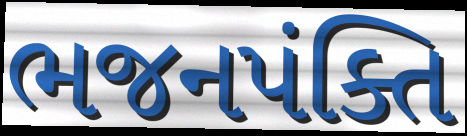
ભજનપંક્તિ